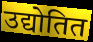
उद्योतित